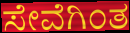
ಸೇವೆಗಿಂತ